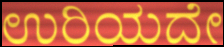
ಉರಿಯದೇ